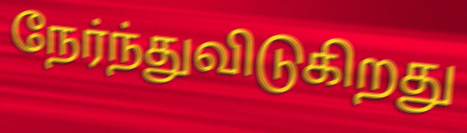
நேர்ந்துவிடுகிறது